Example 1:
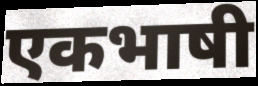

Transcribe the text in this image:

एकभाषी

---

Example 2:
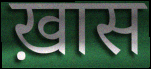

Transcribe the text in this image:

ख़ास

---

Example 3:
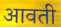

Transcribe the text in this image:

आवती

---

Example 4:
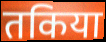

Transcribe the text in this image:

तकिया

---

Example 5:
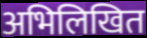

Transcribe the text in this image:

अभिलिखित